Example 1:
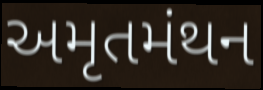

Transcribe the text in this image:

અમૃતમંથન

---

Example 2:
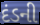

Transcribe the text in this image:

દંડની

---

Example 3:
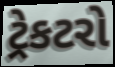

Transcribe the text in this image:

ટ્રેકટરો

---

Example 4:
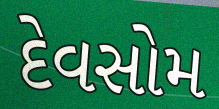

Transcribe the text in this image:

દેવસોમ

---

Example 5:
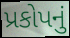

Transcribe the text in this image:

પ્રકોપનું